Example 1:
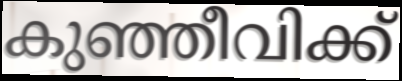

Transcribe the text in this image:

കുഞ്ഞീവിക്ക്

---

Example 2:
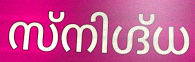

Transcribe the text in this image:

സ്നിഗ്ദ്ധ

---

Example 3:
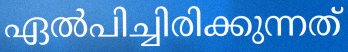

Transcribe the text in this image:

ഏൽപിച്ചിരിക്കുന്നത്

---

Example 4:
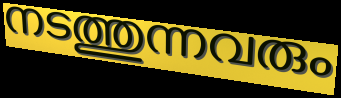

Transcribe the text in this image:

നടത്തുന്നവരും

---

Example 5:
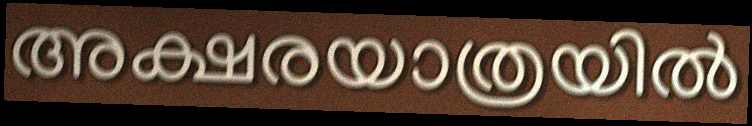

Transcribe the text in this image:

അക്ഷരയാത്രയിൽ